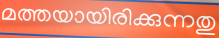
മത്തയായിരിക്കുന്നതു